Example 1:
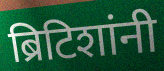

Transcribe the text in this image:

ब्रिटिशांनी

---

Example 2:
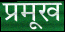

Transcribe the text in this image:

प्रमूख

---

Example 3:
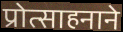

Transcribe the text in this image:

प्रोत्साहनाने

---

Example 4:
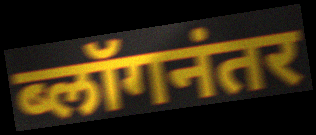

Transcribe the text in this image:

ब्लॉगनंतर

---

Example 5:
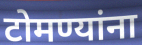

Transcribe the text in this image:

टोमण्यांना